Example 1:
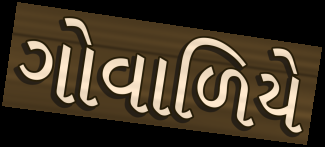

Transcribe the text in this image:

ગોવાળિયે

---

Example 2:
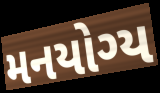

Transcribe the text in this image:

મનયોગ્ય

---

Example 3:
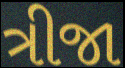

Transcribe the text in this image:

ત્રીજા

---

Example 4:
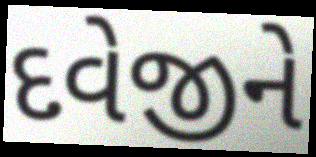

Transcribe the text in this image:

દવેજીને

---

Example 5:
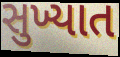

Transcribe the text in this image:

સુખ્યાત